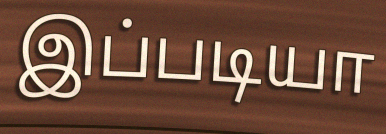
இப்படியா